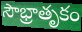
సౌభ్రాతృకం